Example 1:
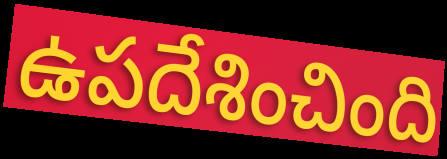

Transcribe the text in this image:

ఉపదేశించింది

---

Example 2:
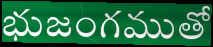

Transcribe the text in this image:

భుజంగముతో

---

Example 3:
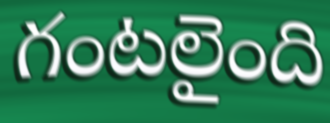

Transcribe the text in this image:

గంటలైంది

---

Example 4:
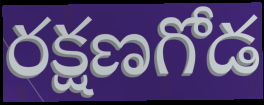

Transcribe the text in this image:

రక్షణగోడ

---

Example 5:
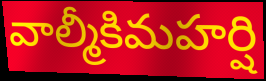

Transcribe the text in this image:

వాల్మీకిమహర్షి